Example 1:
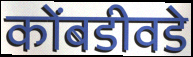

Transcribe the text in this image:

कोंबडीवडे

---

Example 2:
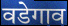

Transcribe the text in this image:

वडेगाव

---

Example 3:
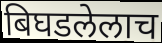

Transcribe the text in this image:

बिघडलेलाच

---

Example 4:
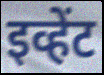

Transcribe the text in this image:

इव्हेंट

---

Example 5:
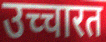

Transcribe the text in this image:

उच्चारत